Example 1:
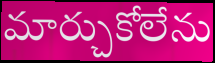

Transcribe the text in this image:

మార్చుకోలేను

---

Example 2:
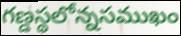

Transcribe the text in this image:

గణ్డస్థలోన్నసముఖం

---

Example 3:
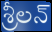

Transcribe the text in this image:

శ్రీలన్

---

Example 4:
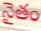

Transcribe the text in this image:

నైతం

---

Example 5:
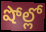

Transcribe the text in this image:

షోల్లో